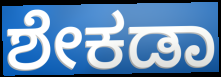
ಶೇಕಡಾ